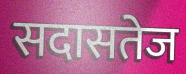
सदासतेज